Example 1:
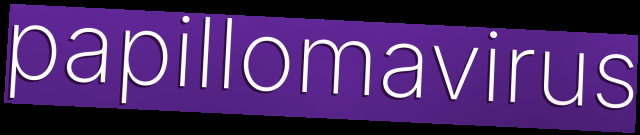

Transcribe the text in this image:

papillomavirus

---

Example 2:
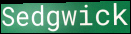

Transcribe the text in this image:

Sedgwick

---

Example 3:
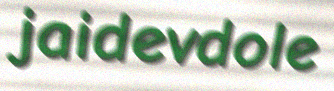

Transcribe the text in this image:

jaidevdole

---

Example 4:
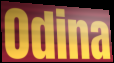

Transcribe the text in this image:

Odina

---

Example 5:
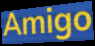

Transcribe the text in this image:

Amigo